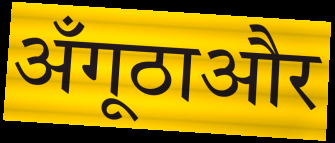
अँगूठाऔर